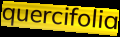
quercifolia